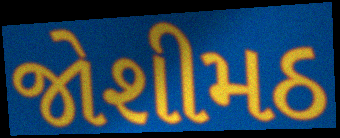
જોશીમઠ